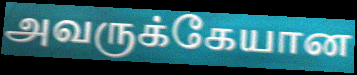
அவருக்கேயான